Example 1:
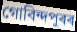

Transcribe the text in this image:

গোবিন্দপুৰৰ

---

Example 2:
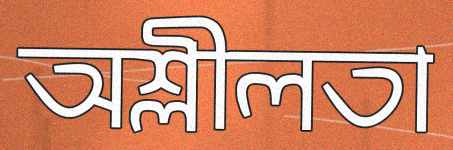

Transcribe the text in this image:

অশ্লীলতা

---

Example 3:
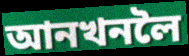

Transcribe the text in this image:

আনখনলৈ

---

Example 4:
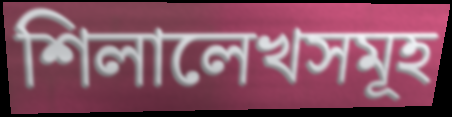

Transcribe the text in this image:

শিলালেখসমূহ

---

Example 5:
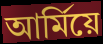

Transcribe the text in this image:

আৰ্মিয়ে